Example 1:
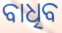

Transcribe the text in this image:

ବାଧିବ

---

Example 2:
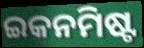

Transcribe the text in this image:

ଇକନମିଷ୍ଟ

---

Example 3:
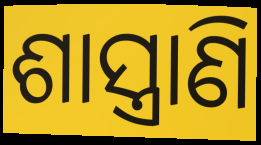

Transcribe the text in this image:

ଶାସ୍ତ୍ରାଣି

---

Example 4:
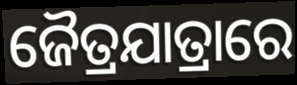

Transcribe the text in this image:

ଜୈତ୍ରଯାତ୍ରାରେ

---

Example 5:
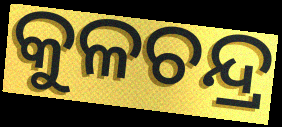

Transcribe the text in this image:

କୁଳଚନ୍ଦ୍ର